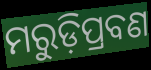
ମରୁଡ଼ିପ୍ରବଣ